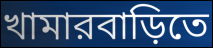
খামারবাড়িতে